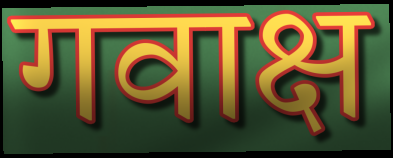
गवाक्ष